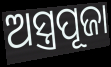
ଅସ୍ତ୍ରପୂଜା